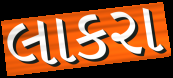
લાકરા